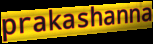
prakashanna